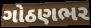
ગોઠણભર